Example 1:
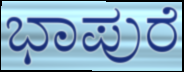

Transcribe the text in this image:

ಭಾಪುರೆ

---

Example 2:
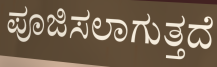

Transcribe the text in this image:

ಪೂಜಿಸಲಾಗುತ್ತದೆ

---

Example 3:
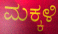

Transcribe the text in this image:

ಮಕ್ಕಳಿ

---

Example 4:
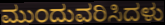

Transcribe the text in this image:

ಮುಂದುವರಿಸಿದಳು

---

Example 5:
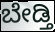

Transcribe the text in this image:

ಬೇಡ್ತಿ